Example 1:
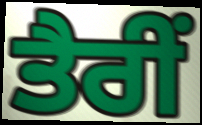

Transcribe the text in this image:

ਤੈਰੀਂ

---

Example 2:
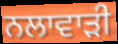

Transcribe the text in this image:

ਨਲਾਵਾੜੀ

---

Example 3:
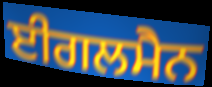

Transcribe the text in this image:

ਈਗਲਮੈਨ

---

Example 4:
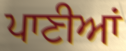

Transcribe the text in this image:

ਪਾਣੀਆਂ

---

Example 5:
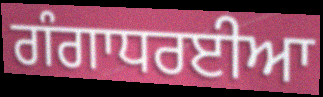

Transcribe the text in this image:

ਗੰਗਾਧਰਈਆ